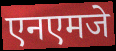
एनएमजे